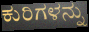
ಕುರಿಗಳನ್ನು